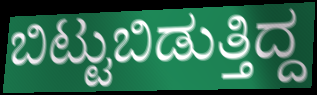
ಬಿಟ್ಟುಬಿಡುತ್ತಿದ್ದ